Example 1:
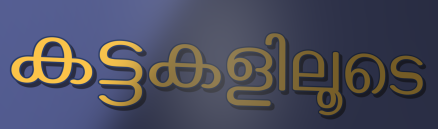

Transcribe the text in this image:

കട്ടകളിലൂടെ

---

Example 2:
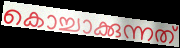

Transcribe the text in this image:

കൊച്ചാക്കുന്നത്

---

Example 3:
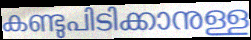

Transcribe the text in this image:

കണ്ടുപിടിക്കാനുള്ള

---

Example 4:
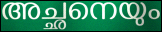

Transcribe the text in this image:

അച്ഛനെയും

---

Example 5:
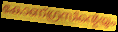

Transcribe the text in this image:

കോണ്ഗ്രസിന്റെയും